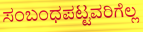
ಸಂಬಂಧಪಟ್ಟವರಿಗೆಲ್ಲ